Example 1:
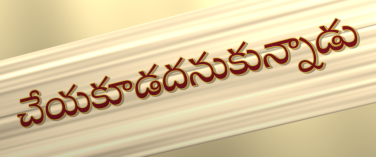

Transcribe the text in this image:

చేయకూడదనుకున్నాడు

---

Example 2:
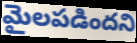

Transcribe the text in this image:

మైలపడిందని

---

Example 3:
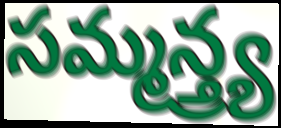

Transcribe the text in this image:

సమ్మన్త్ర్య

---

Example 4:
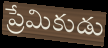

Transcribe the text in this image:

ప్రేమికుడు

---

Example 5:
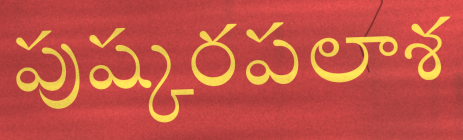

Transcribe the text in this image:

పుష్కరపలాశ